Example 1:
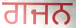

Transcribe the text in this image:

ਗਜਨ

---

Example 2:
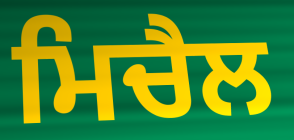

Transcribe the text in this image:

ਮਿਚੈਲ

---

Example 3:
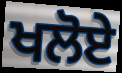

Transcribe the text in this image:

ਖਲੋਏ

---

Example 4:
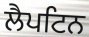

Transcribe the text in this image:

ਲੈਪਟਿਨ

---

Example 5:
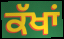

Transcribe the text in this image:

ਕੱਖਾਂ